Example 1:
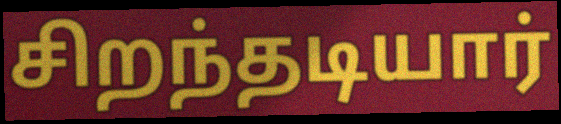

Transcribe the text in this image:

சிறந்தடியார்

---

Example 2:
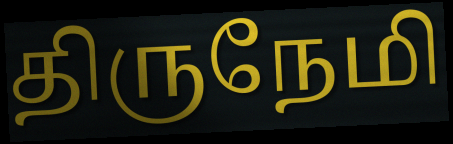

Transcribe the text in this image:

திருநேமி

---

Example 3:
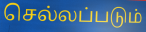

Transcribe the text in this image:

செல்லப்படும்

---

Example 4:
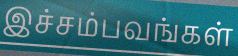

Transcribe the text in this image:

இச்சம்பவங்கள்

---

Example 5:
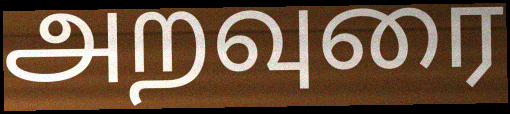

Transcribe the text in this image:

அறவுரை